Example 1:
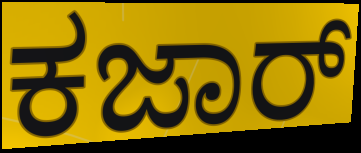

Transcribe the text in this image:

ಕಜಾರ್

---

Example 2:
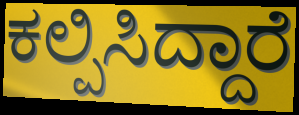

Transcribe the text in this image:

ಕಲ್ಪಿಸಿದ್ದಾರೆ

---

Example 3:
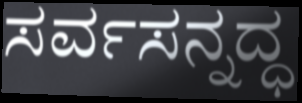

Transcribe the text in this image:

ಸರ್ವಸನ್ನದ್ಧ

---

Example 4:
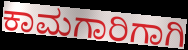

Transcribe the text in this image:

ಕಾಮಗಾರಿಗಾಗಿ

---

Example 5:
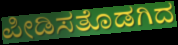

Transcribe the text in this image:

ಪೀಡಿಸತೊಡಗಿದ